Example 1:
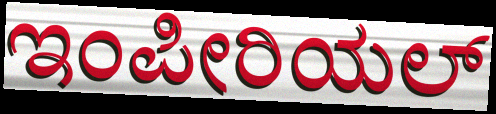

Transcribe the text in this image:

ಇಂಪೀರಿಯಲ್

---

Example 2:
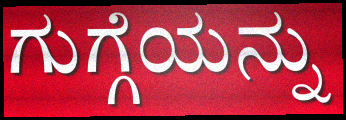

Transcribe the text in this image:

ಗುಗ್ಗೆಯನ್ನು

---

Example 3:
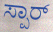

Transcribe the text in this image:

ಸ್ಪಾರ್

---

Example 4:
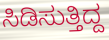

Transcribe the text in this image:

ಸಿಡಿಸುತ್ತಿದ್ದ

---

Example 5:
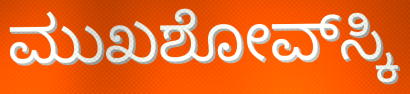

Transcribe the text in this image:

ಮುಖಶೋವ್‌ಸ್ಕಿ